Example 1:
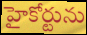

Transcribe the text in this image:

హైకోర్టును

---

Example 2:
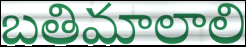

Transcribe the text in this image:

బతిమాలాలి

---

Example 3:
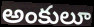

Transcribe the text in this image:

అంకులూ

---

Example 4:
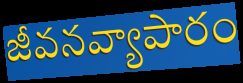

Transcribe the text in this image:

జీవనవ్యాపారం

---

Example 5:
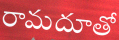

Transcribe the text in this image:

రామదూతో